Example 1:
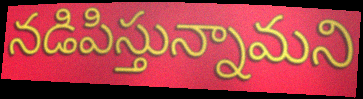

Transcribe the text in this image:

నడిపిస్తున్నామని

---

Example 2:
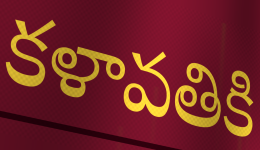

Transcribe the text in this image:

కళావతికి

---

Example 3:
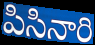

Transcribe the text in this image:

పిసినారి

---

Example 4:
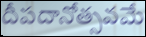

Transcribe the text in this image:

దీపదానోత్సవమే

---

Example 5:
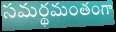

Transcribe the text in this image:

సమర్థమంతంగా